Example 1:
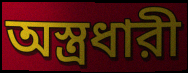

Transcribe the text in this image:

অস্ত্রধারী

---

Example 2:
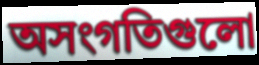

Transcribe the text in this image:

অসংগতিগুলো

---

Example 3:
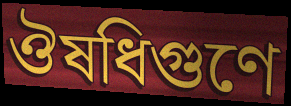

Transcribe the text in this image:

ঔষধিগুণে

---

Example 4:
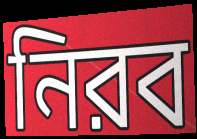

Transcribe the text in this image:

নিরব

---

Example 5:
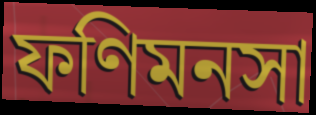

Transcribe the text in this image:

ফণিমনসা